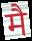
मै